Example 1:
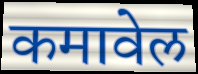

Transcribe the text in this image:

कमावेल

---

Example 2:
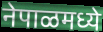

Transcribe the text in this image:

नेपाळमध्ये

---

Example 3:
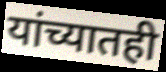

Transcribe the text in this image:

यांच्यातही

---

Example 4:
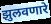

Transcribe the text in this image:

झुलवणारे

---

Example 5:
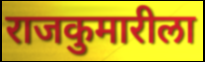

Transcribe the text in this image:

राजकुमारीला